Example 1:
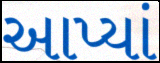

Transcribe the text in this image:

આપ્યાં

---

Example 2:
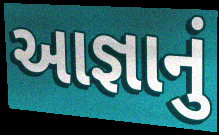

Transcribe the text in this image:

આજ્ઞાનું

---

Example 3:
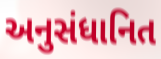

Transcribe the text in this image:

અનુસંધાનિત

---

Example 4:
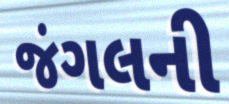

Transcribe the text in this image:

જંગલની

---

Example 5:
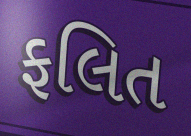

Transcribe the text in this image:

ફલિત